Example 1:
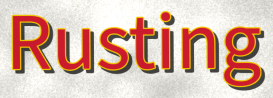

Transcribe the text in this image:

Rusting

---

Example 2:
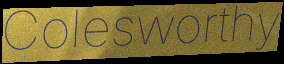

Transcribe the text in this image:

Colesworthy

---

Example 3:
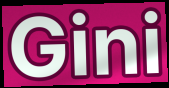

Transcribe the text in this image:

Gini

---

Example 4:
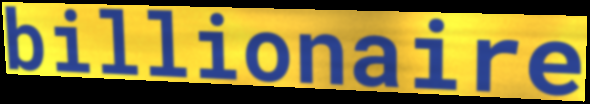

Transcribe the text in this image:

billionaire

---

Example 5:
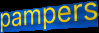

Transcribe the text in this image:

pampers